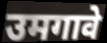
उमगावे